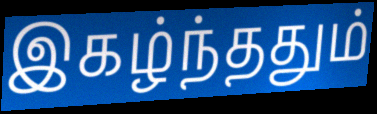
இகழ்ந்ததும்